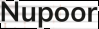
Nupoor